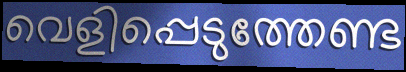
വെളിപ്പെടുത്തേണ്ട